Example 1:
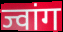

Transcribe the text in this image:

ज्वांग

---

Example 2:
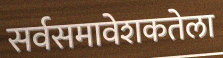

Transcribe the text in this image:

सर्वसमावेशकतेला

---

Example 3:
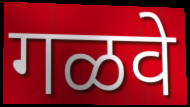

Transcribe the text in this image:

गळवे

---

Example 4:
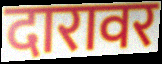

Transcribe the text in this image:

दारावर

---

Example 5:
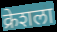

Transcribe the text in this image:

क्रेशला